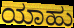
ಯಾಹು